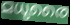
മധുരൈ